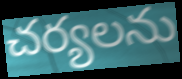
చర్యలను